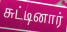
சுட்டினார்